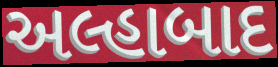
અલ્હાબાદ